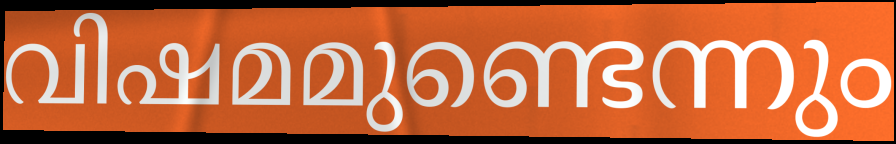
വിഷമമുണ്ടെന്നും